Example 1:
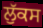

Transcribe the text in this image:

ਲੁੱਕਸ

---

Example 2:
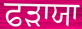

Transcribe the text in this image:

ਫੜਾਯਾ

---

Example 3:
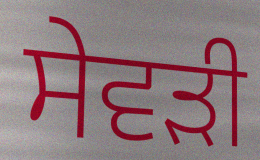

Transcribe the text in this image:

ਸੇਵੜੀ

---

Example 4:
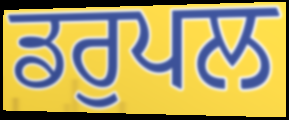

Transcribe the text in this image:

ਡਰੁਪਲ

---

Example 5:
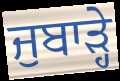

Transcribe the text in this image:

ਜੁਬਾੜ੍ਹੇ